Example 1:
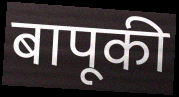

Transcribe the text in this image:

बापूकी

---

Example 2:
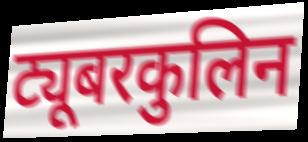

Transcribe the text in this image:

ट्यूबरकुलिन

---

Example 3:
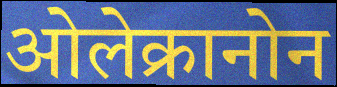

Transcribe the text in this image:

ओलेक्रानोन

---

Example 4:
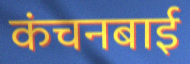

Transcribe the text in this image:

कंचनबाई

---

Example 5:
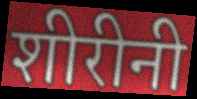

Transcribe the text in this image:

शीरीनी